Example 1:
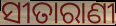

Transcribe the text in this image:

ସୀତାରାଣୀ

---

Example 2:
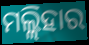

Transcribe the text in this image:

ମଲ୍ଲିହାର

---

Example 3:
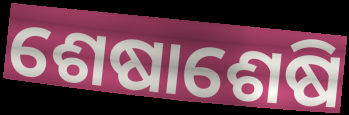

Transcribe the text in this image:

ଶେଷାଶେଷି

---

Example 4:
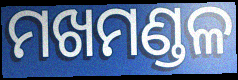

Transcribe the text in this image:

ମଖମଣ୍ଡଳ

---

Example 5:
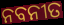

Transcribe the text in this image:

ନବନୀତ